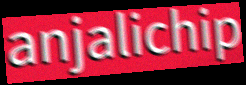
anjalichip